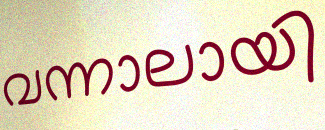
വന്നാലായി